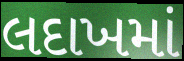
લદાખમાં